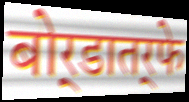
बोर्डातर्फे